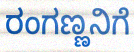
ರಂಗಣ್ಣನಿಗೆ